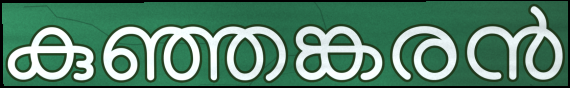
കുഞ്ഞങ്കരൻ